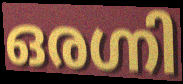
ഒരഗ്നി